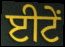
ਈਟੇਂ